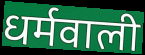
धर्मवाली